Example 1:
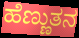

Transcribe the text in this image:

ಹೆಣ್ಣುತನ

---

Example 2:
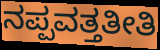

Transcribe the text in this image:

ನಪ್ಪವತ್ತತೀತಿ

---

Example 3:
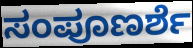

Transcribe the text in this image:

ಸಂಪೂಣರ್ಶೆ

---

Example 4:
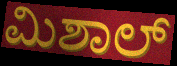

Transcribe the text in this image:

ಮಿಶಾಲ್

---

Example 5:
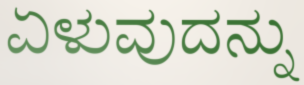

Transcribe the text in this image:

ಏಳುವುದನ್ನು